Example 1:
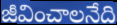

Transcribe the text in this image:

జీవించాలనేది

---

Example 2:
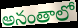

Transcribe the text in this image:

అనంతాలో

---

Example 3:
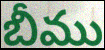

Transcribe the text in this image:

బీము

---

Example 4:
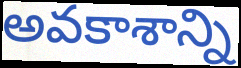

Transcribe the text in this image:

అవకాశాన్ని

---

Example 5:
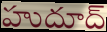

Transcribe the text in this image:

హుదూద్